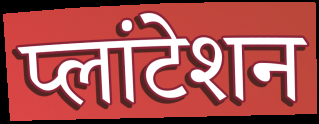
प्लांटेशन